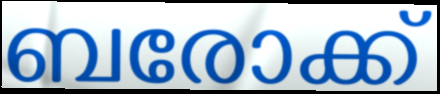
ബരോക്ക്